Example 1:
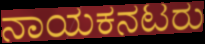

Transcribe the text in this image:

ನಾಯಕನಟರು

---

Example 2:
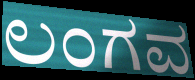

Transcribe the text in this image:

ಲಂಗವ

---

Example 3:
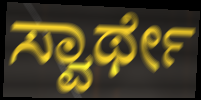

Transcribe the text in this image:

ಸ್ವಾರ್ಥೇ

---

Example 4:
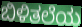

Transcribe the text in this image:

ಬಿಳಿತಲೆಯ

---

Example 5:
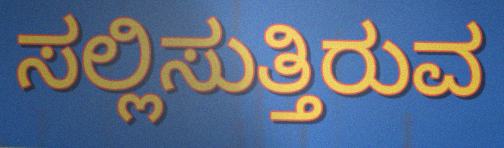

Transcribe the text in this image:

ಸಲ್ಲಿಸುತ್ತಿರುವ